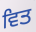
ਵਿਤ